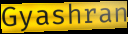
Gyashran